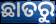
ଛାତରୁ